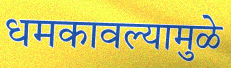
धमकावल्यामुळे